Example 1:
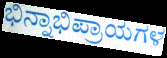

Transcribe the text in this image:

ಭಿನ್ನಾಭಿಪ್ರಾಯಗಳ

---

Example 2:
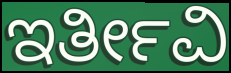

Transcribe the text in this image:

ಇರ್ತೀವಿ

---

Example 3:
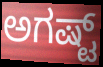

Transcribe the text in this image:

ಅಗಷ್ಟ್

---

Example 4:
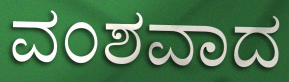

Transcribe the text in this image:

ವಂಶವಾದ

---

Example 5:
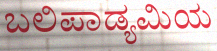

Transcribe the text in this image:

ಬಲಿಪಾಡ್ಯಮಿಯ